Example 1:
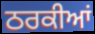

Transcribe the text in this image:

ਠਰਕੀਆਂ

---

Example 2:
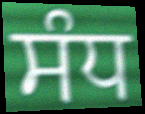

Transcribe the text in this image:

ਸੰਧ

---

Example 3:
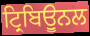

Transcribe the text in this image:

ਟ੍ਰਿਬਿਊੁਨਲ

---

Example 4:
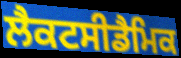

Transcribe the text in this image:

ਲੈਕਟਸੀਡੈਮਿਕ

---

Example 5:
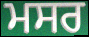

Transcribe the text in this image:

ਮਸਰ